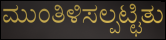
ಮುಂತಿಳಿಸಲ್ಪಟ್ಟಿತು